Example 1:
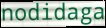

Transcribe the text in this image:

nodidaga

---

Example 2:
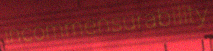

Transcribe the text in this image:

incommensurability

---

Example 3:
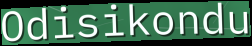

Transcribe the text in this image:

Odisikondu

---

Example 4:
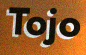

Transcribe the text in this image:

Tojo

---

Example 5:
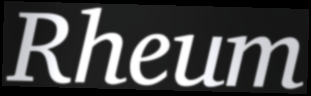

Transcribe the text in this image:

Rheum